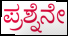
ಪ್ರಶ್ನೆನೇ